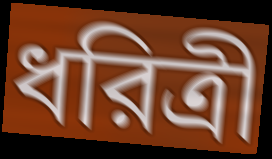
ধরিত্রী